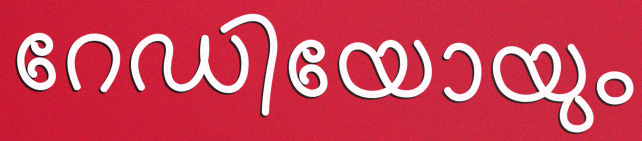
റേഡിയോയും